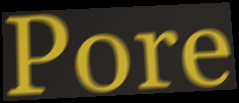
Pore